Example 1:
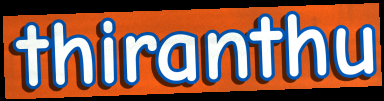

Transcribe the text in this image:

thiranthu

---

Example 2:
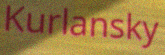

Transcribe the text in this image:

Kurlansky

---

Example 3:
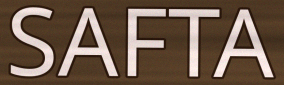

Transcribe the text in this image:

SAFTA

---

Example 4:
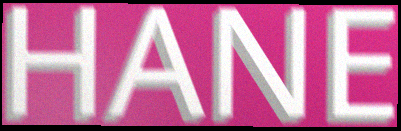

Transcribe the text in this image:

HANE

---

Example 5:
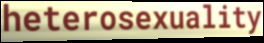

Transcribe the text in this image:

heterosexuality